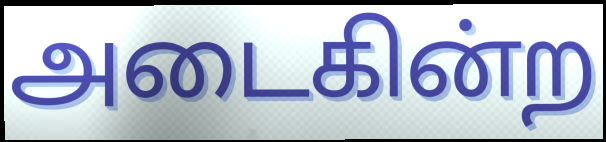
அடைகின்ற